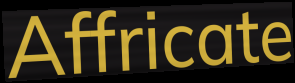
Affricate